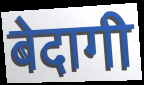
बेदागी